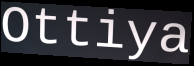
Ottiya